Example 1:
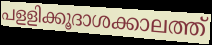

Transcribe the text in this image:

പളളിക്കൂദാശക്കാലത്ത്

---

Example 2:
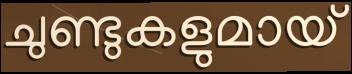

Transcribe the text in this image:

ചുണ്ടുകളുമായ്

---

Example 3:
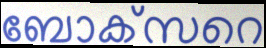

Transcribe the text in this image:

ബോക്‌സറെ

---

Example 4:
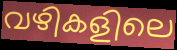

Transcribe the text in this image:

വഴികളിലെ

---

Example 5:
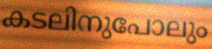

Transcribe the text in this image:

കടലിനുപോലും